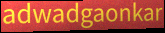
adwadgaonkar